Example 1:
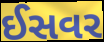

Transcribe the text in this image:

ઈસવર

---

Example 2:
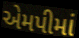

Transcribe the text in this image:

એમપીમાં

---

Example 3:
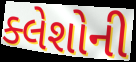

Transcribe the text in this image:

ક્લેશોની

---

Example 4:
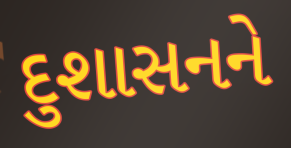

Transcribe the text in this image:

દુશાસનને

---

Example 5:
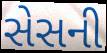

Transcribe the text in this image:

સેસની